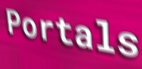
Portals